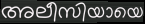
അലീസിയായെ